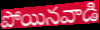
పోయినవాడి